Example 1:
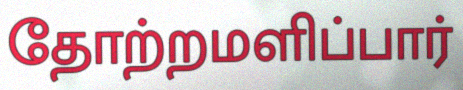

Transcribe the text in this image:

தோற்றமளிப்பார்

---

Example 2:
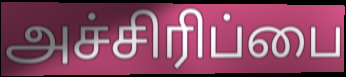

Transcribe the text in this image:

அச்சிரிப்பை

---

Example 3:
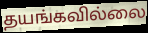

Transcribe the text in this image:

தயங்கவில்லை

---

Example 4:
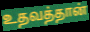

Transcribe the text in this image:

உதவத்தான்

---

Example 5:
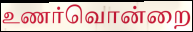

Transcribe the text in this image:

உணர்வொன்றை